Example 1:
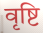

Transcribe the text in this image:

वृष्टि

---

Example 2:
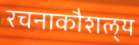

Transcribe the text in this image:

रचनाकौशल्य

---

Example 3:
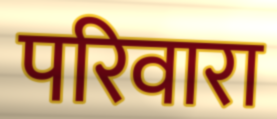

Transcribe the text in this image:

परिवारा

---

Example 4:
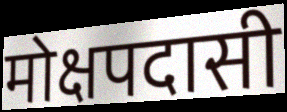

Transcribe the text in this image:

मोक्षपदासी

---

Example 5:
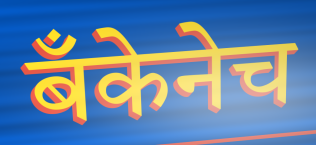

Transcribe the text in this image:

बँकेनेच